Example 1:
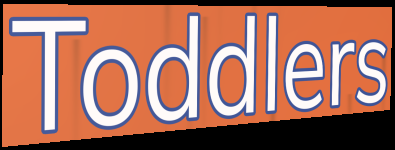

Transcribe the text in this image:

Toddlers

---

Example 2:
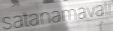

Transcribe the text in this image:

satanamavali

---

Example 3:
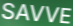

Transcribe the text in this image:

SAVVE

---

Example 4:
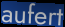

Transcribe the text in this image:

aufert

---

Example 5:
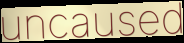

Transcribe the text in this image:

uncaused